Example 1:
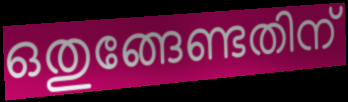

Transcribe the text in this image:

ഒതുങ്ങേണ്ടതിന്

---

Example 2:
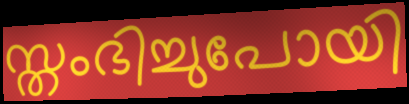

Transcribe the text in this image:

സ്തംഭിച്ചുപോയി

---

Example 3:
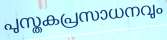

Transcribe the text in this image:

പുസ്തകപ്രസാധനവും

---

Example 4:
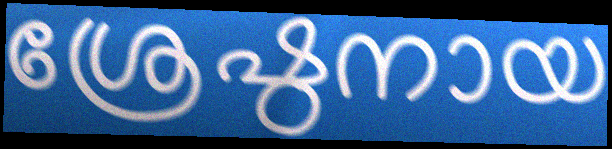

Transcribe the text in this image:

ശ്രേഷ്ഠനായ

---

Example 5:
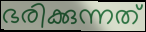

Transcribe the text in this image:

ഭരിക്കുന്നത്